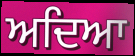
ਅਦਿਆ